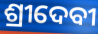
ଶ୍ରୀଦେବୀ